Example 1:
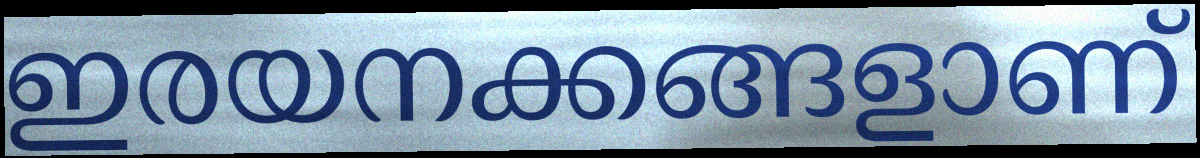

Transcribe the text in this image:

ഇരയനക്കങ്ങളാണ്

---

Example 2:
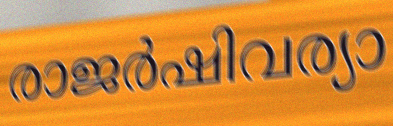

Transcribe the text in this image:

രാജർഷിവര്യാ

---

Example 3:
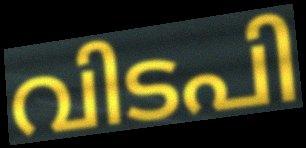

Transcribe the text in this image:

വിടപി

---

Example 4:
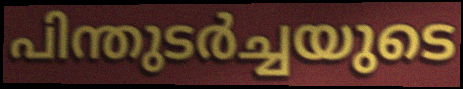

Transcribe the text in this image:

പിന്തുടർച്ചയുടെ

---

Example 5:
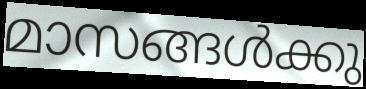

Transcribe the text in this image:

മാസങ്ങൾക്കു